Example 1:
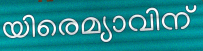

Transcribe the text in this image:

യിരെമ്യാവിന്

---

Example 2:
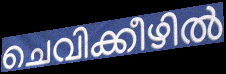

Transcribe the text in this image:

ചെവിക്കീഴിൽ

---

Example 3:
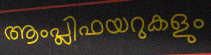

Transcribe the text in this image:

ആംപ്ലിഫയറുകളും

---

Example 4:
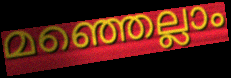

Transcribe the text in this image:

മഞ്ഞെല്ലാം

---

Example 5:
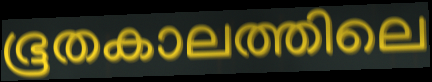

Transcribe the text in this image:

ഭൂതകാലത്തിലെ